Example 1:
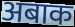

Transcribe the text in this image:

अबाक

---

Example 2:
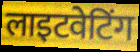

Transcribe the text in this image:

लाइटवेटिंग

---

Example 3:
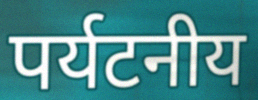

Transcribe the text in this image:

पर्यटनीय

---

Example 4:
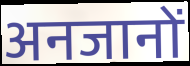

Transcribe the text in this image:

अनजानों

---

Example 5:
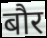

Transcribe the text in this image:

बौर